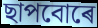
ছাপবোৰে